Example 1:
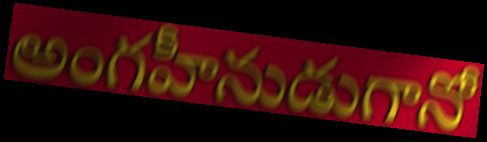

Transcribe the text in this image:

అంగహీనుడుగానో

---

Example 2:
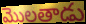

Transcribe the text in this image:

మొలతాడు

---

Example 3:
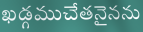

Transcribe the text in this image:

ఖడ్గముచేతనైనను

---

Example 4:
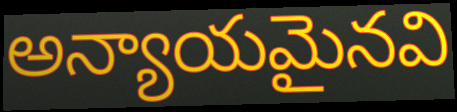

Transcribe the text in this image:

అన్యాయమైనవి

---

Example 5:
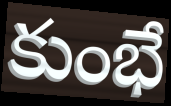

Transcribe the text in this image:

కుంభే